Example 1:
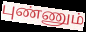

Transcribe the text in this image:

புண்ணும்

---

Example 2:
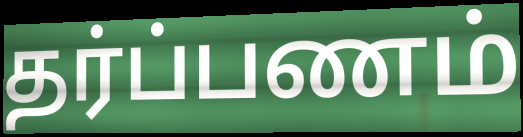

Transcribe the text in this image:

தர்ப்பணம்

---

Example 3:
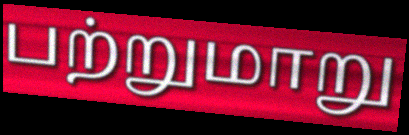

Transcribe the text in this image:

பற்றுமாறு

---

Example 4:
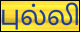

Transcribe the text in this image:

புல்லி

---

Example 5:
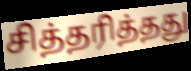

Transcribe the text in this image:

சித்தரித்தது